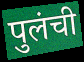
पुलंची